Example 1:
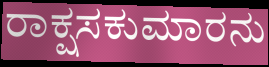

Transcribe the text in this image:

ರಾಕ್ಷಸಕುಮಾರನು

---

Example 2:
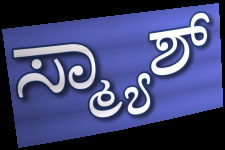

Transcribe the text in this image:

ಸ್ಮ್ಯಾಶ್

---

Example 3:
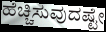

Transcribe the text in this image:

ಹೆಚ್ಚಿಸುವುದಷ್ಟೇ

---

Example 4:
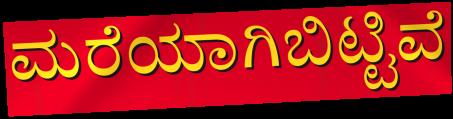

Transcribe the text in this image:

ಮರೆಯಾಗಿಬಿಟ್ಟಿವೆ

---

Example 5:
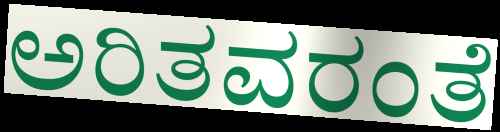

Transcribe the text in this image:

ಅರಿತವರಂತೆ